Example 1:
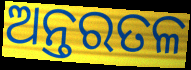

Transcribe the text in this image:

ଅନ୍ତରତଳ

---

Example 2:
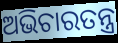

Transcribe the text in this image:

ଅଭିଚାରତନ୍ତ୍ର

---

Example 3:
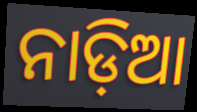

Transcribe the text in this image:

ନାଡ଼ିଆ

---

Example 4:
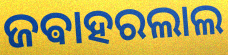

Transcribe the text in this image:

ଜଵାହରଲାଲ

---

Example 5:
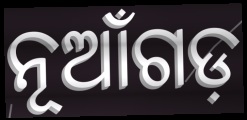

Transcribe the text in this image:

ନୂଆଁଗଡ଼